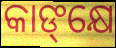
କାଙ୍‌କ୍ଷେ